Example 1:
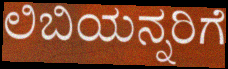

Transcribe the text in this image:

ಲಿಬಿಯನ್ನರಿಗೆ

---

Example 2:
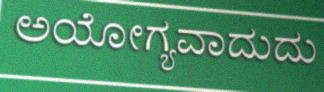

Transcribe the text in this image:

ಅಯೋಗ್ಯವಾದುದು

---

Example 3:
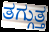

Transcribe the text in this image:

ತಗ್ಗುತ್ತ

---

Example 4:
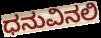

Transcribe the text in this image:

ಧನುವಿನಲಿ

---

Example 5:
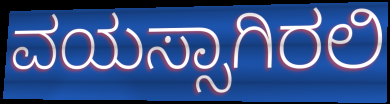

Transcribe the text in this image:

ವಯಸ್ಸಾಗಿರಲಿ